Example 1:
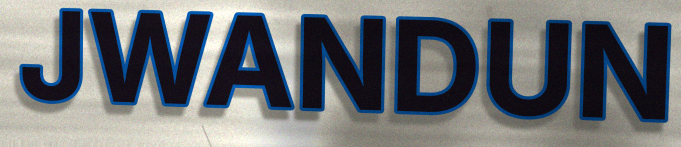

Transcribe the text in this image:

JWANDUN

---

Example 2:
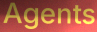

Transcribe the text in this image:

Agents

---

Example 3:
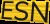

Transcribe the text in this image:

ESN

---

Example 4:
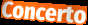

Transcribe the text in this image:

Concerto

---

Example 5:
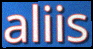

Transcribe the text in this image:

aliis